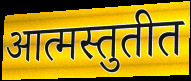
आत्मस्तुतीत